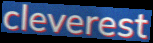
cleverest